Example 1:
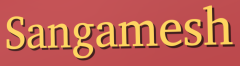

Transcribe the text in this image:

Sangamesh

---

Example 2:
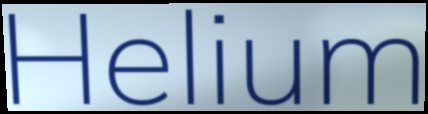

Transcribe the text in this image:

Helium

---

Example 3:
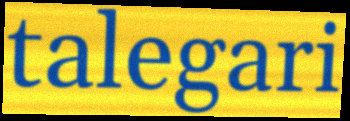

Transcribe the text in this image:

talegari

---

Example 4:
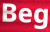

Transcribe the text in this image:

Beg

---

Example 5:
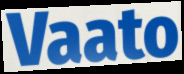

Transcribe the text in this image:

Vaato